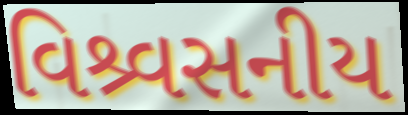
વિશ્ર્વસનીય